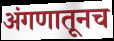
अंगणातूनच